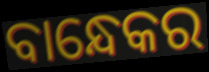
ବାନ୍ଧେକର